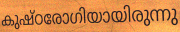
കുഷ്ഠരോഗിയായിരുന്നു